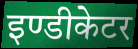
इण्डीकेटर